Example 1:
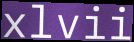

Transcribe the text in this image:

xlvii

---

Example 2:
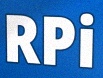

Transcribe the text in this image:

RPi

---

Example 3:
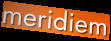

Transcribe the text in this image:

meridiem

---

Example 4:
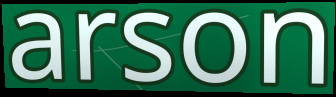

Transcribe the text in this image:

arson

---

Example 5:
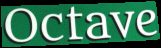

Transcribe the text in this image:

Octave